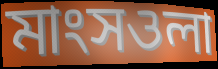
মাংসওলা